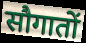
सौगातों